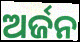
ଅର୍ଜନ